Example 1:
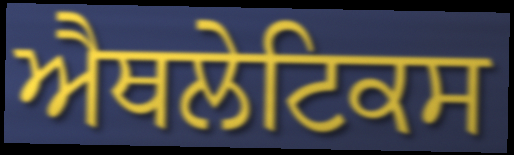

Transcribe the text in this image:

ਐਥਲੇਟਿਕਸ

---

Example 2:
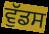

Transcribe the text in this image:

ਵੁੱਡਸ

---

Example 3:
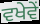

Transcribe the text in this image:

ਵਖੇਵੇਂ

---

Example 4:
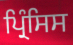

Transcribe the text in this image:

ਪ੍ਰਿੰਸਿਸ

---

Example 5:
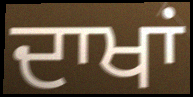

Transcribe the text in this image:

ਦਾਖਾਂ